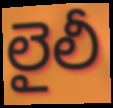
లైలీ